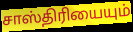
சாஸ்திரியையும்